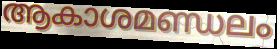
ആകാശമണ്ഡലം